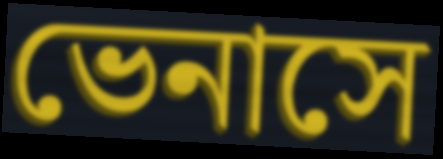
ভেনাসে